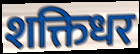
शक्तिधर